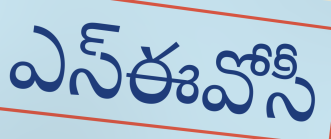
ఎస్ఈవోసీ